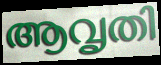
ആവൃതി